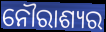
ନୌରାଶ୍ୟର